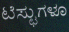
ಟೆಸ್ಟುಗಳೂ